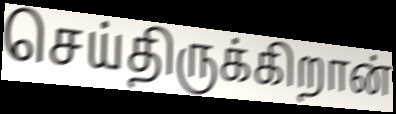
செய்திருக்கிறான்